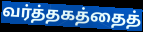
வர்த்தகத்தைத்